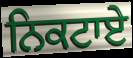
ਨਿਕਟਾਏ